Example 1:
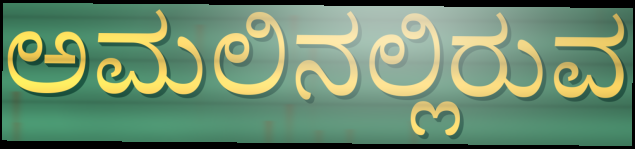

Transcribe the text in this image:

ಅಮಲಿನಲ್ಲಿರುವ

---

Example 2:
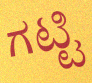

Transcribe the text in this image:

ಗಟ್ಟಿ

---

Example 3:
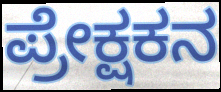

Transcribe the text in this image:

ಪ್ರೇಕ್ಷಕನ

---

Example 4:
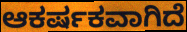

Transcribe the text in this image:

ಆಕರ್ಷಕವಾಗಿದೆ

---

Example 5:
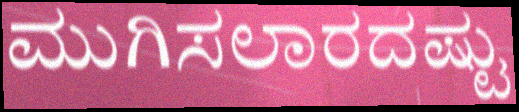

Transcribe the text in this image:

ಮುಗಿಸಲಾರದಷ್ಟು